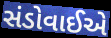
સંડોવાઈએ